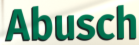
Abusch